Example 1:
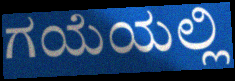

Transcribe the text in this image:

ಗಯೆಯಲ್ಲಿ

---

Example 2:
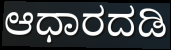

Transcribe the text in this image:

ಆಧಾರದಡಿ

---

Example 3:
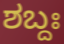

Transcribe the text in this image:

ಶಬ್ದಃ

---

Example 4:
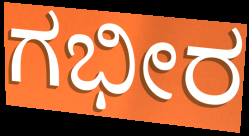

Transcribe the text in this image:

ಗಭೀರ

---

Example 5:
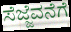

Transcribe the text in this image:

ಸೆಜ್ಜೆವನೆಗೆ